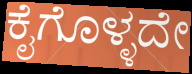
ಕೈಗೊಳ್ಳದೇ